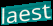
laest